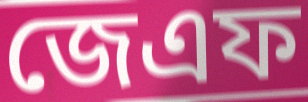
জেএফ